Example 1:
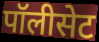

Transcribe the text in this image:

पॉलीसेट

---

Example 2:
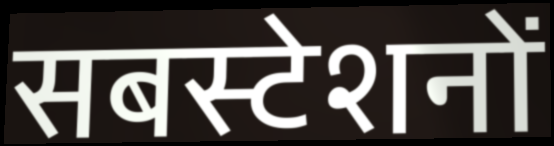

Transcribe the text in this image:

सबस्टेशनों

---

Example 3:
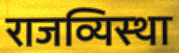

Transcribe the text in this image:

राजव्यिस्था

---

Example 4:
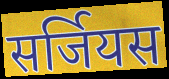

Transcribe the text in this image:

सर्जियस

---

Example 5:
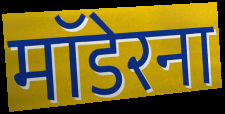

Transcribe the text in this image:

मॉडेरना